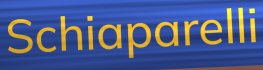
Schiaparelli